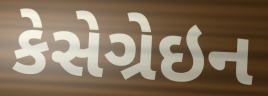
કેસેગ્રેઇન